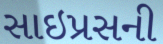
સાઇપ્રસની